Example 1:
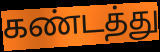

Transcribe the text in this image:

கண்டத்து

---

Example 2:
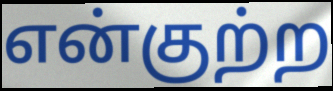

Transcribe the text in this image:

என்குற்ற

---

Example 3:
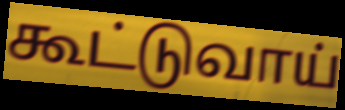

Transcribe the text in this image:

கூட்டுவாய்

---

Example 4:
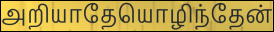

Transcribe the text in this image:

அறியாதேயொழிந்தேன்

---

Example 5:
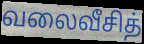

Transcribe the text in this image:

வலைவீசித்